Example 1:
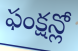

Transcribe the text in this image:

ఫంక్షన్లో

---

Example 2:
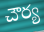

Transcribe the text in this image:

చౌర్య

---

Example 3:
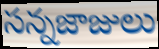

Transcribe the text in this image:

సన్నజాజులు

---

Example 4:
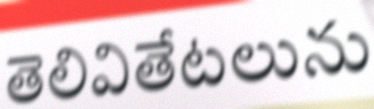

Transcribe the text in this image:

తెలివితేటలును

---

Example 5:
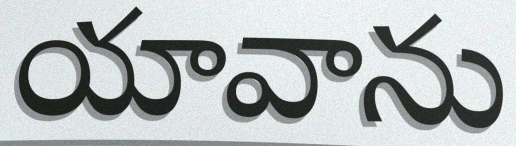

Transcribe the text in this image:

యావాను